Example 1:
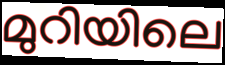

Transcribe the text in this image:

മുറിയിലെ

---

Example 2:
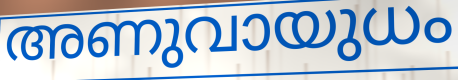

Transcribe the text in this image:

അണുവായുധം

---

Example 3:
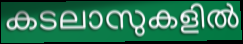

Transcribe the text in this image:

കടലാസുകളിൽ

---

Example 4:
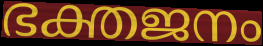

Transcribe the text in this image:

ഭക്തജനം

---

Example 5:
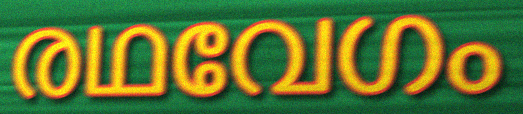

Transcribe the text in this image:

രഥവേഗം